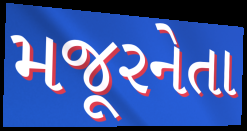
મજૂરનેતા